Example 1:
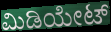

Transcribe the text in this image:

ಮಿಡಿಯೇಟ್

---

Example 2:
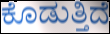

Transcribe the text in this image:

ಕೊಡುತ್ತಿದೆ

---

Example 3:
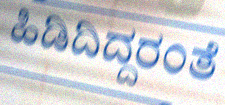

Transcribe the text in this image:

ಹಿಡಿದಿದ್ದರಂತೆ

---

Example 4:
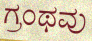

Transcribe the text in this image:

ಗ್ರಂಥವು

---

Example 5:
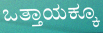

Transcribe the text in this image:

ಒತ್ತಾಯಕ್ಕೂ